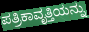
ಪತ್ರಿಕಾವೃತ್ತಿಯನ್ನು